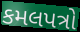
કમલપત્રો